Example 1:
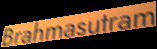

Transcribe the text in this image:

Brahmasutram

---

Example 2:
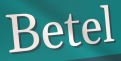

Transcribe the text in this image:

Betel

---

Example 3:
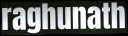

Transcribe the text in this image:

raghunath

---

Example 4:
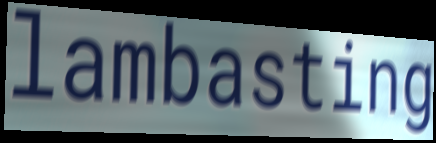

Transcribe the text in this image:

lambasting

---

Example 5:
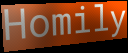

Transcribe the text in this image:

Homily